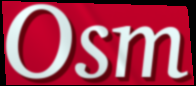
Osm